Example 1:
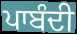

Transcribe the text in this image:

ਪਾਬੰਦੀ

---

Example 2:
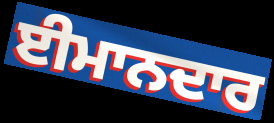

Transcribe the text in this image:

ਈਮਾਨਦਾਰ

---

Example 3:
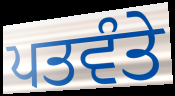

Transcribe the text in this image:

ਪਤਵੰਤੇ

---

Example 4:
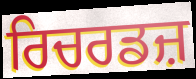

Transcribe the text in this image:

ਰਿਚਰਡਜ਼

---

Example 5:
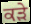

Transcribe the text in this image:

ਕੜੇ